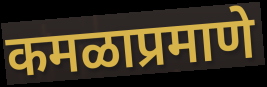
कमळाप्रमाणे